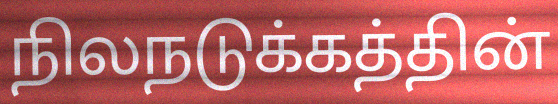
நிலநடுக்கத்தின்